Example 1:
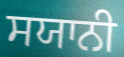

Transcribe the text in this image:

ਸਯਾਨੀ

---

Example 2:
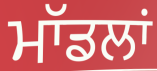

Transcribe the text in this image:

ਮਾੱਡਲਾਂ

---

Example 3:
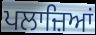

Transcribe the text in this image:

ਪਲਾਜ਼ਿਆਂ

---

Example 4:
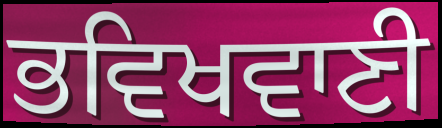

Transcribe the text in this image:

ਭਵਿਖਵਾਣੀ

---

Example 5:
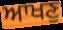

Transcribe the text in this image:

ਆਖਣੁ